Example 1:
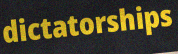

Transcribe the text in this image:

dictatorships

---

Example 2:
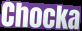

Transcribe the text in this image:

Chocka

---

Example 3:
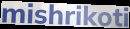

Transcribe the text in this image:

mishrikoti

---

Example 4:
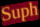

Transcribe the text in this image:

Suph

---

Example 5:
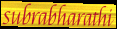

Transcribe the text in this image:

subrabharathi